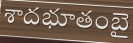
శాదభూతంబై